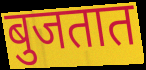
बुजतात